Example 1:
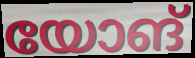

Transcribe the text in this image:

യോങ്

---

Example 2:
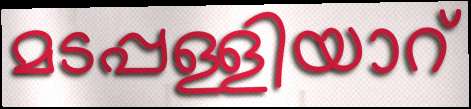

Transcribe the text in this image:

മടപ്പള്ളിയാറ്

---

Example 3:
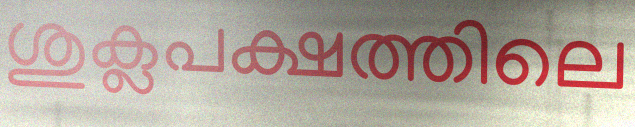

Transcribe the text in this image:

ശുക്ലപക്ഷത്തിലെ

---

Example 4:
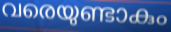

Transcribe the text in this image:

വരെയുണ്ടാകും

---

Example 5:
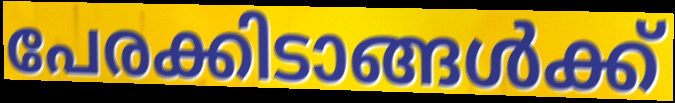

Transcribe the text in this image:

പേരക്കിടാങ്ങൾക്ക്